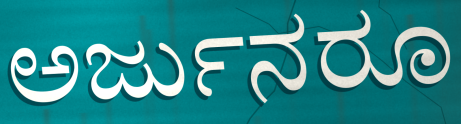
ಅರ್ಜುನರೂ